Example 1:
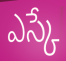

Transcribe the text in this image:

ఎస్కే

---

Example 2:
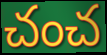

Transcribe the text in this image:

చంచ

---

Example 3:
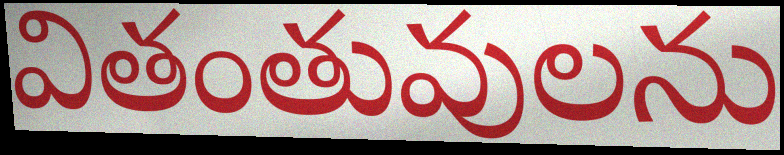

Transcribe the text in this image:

వితంతువులను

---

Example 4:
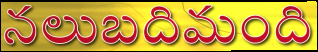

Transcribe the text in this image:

నలుబదిమంది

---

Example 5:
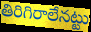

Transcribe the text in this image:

తిరిగిరాలేనట్టు